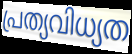
പ്രത്യവിധ്യത